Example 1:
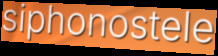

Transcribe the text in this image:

siphonostele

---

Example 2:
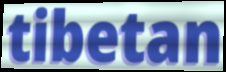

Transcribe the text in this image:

tibetan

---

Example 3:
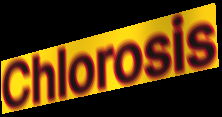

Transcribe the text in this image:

Chlorosis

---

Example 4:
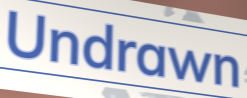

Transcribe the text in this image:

Undrawn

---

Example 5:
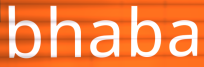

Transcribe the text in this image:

bhaba